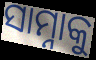
ସାମ୍ନାକୁ